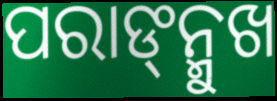
ପରାଙ୍‌ନ୍ମୁଖ